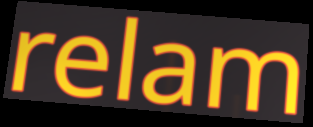
relam